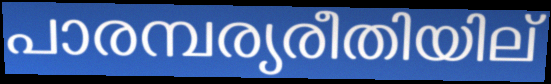
പാരമ്പര്യരീതിയില്